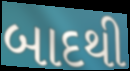
બાદથી